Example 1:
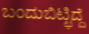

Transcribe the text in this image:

ಬಂದುಬಿಟ್ಟಿದ್ದೆ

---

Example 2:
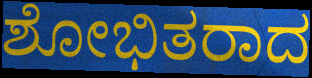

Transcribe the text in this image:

ಶೋಭಿತರಾದ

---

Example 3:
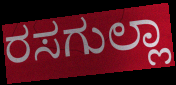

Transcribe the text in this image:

ರಸಗುಲ್ಲಾ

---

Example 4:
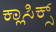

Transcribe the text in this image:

ಕ್ಲಾಸಿಕ್ಸ್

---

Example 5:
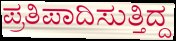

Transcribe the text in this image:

ಪ್ರತಿಪಾದಿಸುತ್ತಿದ್ದ